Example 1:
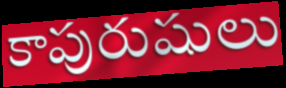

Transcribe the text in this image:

కాపురుషులు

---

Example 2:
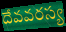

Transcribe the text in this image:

దేవవరస్య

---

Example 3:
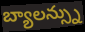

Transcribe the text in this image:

బ్యాలన్స్ను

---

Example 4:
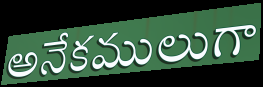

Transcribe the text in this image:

అనేకములుగా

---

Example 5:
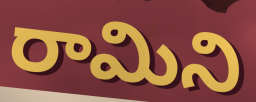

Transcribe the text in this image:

రామిని